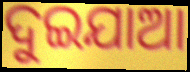
ଦୁଇଯାଆ